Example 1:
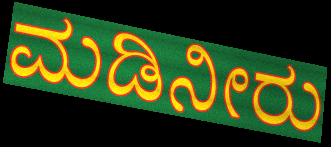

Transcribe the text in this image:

ಮಡಿನೀರು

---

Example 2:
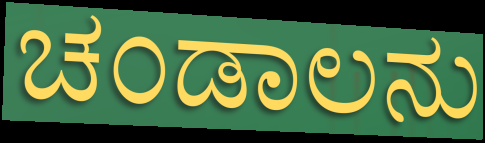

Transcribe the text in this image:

ಚಂಡಾಲನು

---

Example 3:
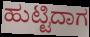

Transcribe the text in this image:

ಹುಟ್ಟಿದಾಗ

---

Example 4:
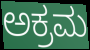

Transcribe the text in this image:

ಅಕ್ರಮ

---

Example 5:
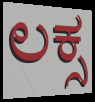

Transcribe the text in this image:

ಲಕ್ಸ